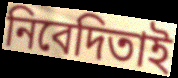
নিবেদিতাই